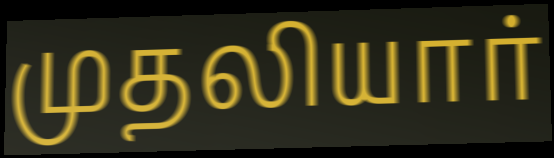
முதலியார்